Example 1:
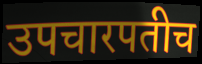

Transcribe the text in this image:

उपचारपतीच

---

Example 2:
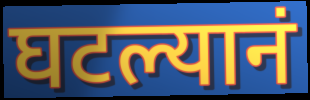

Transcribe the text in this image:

घटल्यानं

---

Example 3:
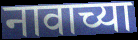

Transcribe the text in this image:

नावाच्या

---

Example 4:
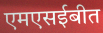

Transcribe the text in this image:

एमएसईबीत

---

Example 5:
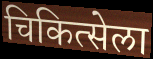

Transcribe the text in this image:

चिकित्सेला